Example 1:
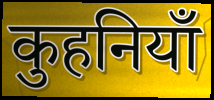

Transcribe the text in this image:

कुहनियाँ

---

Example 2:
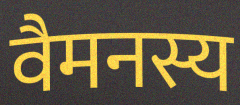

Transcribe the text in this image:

वैमनस्य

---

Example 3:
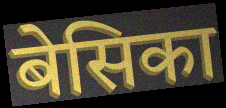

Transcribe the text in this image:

बेसिका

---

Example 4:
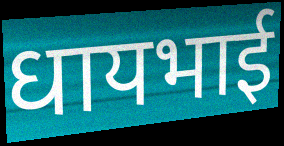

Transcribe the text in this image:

धायभाई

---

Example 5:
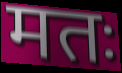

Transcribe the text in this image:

मतः